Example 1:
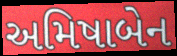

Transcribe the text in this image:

અમિષાબેન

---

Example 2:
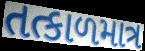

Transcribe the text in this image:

તત્કાળમાત્ર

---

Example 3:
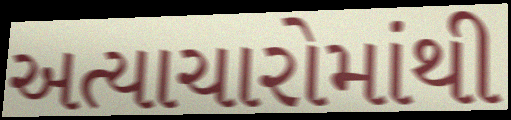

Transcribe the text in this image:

અત્યાચારોમાંથી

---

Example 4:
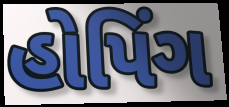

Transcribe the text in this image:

હોપિંગ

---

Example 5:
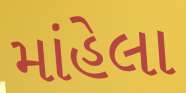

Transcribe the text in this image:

માંહેલા